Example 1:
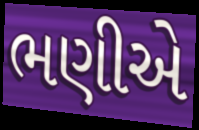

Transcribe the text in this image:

ભણીએ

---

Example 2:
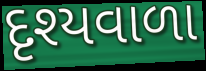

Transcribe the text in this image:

દૃશ્યવાળા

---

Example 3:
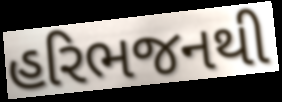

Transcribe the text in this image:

હરિભજનથી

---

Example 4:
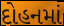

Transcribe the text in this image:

દોહનમાં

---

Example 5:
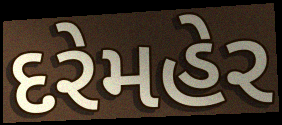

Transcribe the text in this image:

દરેમહેર